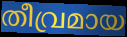
തീവ്രമായ